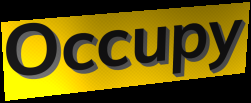
Occupy